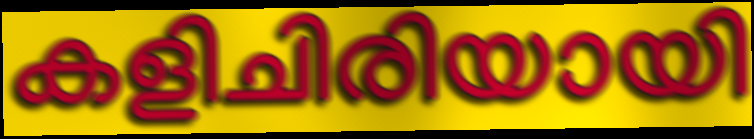
കളിചിരിയായി